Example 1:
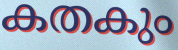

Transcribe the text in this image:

കതകും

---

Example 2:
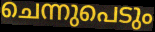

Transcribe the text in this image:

ചെന്നുപെടും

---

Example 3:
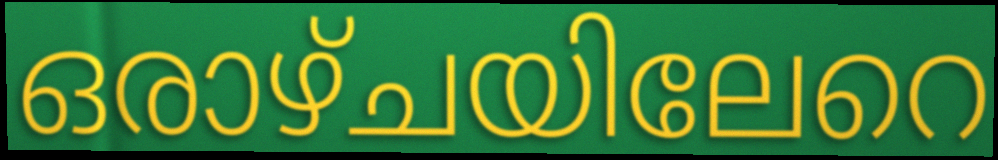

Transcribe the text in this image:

ഒരാഴ്ചയിലേറെ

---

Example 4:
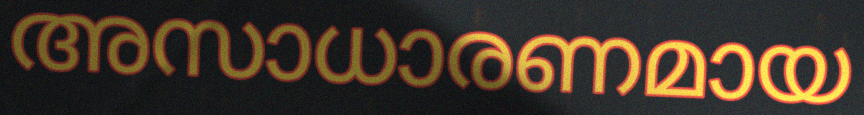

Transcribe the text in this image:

അസാധാരണമായ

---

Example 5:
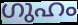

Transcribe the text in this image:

ഗുഹം